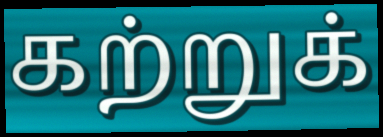
கற்றுக்